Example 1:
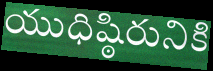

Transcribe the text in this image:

యుధిష్ఠిరునికి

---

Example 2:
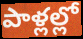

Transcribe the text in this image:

పాళ్లల్లో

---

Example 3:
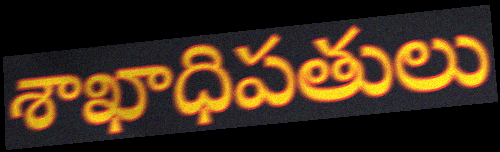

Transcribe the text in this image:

శాఖాధిపతులు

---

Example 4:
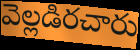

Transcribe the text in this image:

వెల్లడిరచారు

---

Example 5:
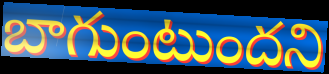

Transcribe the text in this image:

బాగుంటుందని